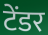
टेंडर